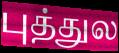
புத்துல